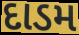
દાડમ